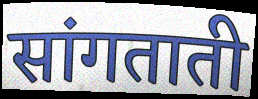
सांगताती